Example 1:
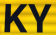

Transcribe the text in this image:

KY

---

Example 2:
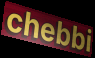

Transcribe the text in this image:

chebbi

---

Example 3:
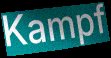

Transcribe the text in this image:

Kampf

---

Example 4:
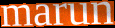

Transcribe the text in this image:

marun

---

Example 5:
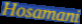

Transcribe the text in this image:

Hosamani